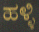
ಹಳ್ಳಿ